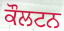
ਕੌਲਟਨ